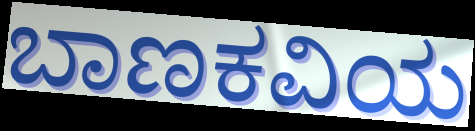
ಬಾಣಕವಿಯ